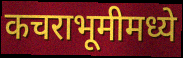
कचराभूमीमध्ये